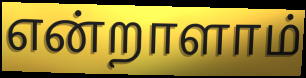
என்றாளாம்